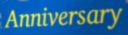
Anniversary